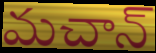
మచాన్